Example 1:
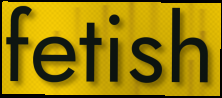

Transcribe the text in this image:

fetish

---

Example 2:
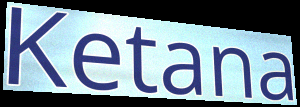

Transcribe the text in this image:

Ketana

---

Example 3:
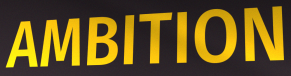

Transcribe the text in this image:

AMBITION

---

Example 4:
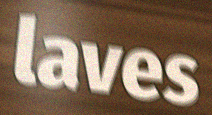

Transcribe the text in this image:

laves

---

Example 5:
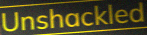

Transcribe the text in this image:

Unshackled